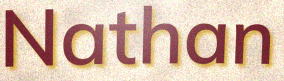
Nathan